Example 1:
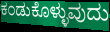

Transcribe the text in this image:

ಕಂಡುಕೊಳ್ಳುವುದು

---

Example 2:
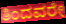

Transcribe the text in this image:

ತಿಂದವರೇ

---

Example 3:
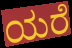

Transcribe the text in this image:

ಯರೆ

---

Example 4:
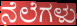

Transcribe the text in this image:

ನೆಲೆಗಳು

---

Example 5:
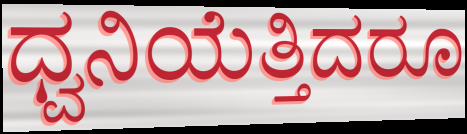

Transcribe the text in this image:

ಧ್ವನಿಯೆತ್ತಿದರೂ